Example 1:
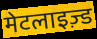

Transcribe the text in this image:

मेटलाइज़्ड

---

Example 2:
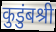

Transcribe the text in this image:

कुडुंबश्री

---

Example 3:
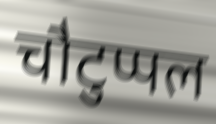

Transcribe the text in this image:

चौटुप्पल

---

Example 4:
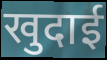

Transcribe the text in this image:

खुदाई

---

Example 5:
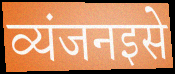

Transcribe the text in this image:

व्यंजनइसे